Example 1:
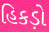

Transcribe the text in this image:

હિકડ઼ો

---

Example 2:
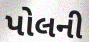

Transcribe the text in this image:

પોલની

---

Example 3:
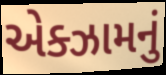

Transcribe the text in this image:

એક્ઝામનું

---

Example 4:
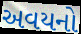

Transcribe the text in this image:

અવયનો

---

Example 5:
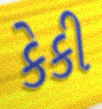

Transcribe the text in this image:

કેકી